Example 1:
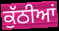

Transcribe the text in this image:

ਕੁੱਠੀਆਂ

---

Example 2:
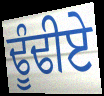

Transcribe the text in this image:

ਢੂੰਢੀਏ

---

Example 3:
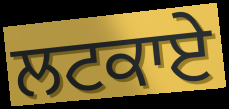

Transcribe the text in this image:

ਲਟਕਾਏ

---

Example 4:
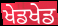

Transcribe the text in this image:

ਖੇਡਖੇਡ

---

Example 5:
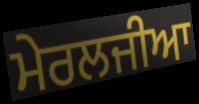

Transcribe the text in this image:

ਮੇਰਲਜੀਆ